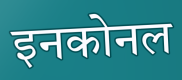
इनकोनल